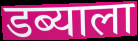
डब्याला